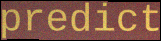
predict